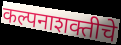
कल्पनाशक्तीचे